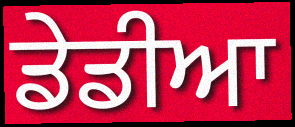
ਡੇਡੀਆ